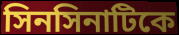
সিনসিনাটিকে